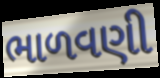
ભાળવણી